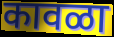
कावळा